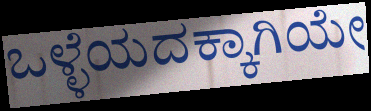
ಒಳ್ಳೆಯದಕ್ಕಾಗಿಯೇ